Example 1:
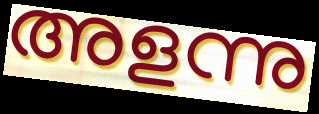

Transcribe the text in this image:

അളന്നു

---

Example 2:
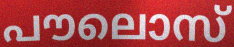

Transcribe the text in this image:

പൗലൊസ്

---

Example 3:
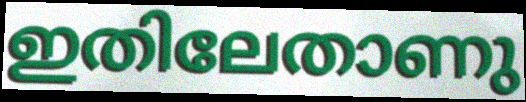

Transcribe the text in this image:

ഇതിലേതാണു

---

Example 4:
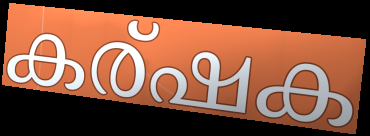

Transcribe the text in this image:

കര്ഷക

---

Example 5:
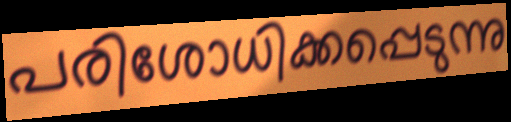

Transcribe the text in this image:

പരിശോധിക്കപ്പെടുന്നു